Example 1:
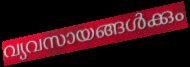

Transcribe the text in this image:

വ്യവസായങ്ങൾക്കും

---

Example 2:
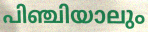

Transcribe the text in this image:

പിഞ്ചിയാലും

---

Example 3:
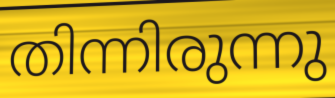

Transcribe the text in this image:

തിന്നിരുന്നു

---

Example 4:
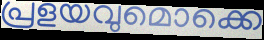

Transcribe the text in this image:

പ്രളയവുമൊക്കെ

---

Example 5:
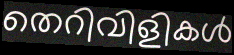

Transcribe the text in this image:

തെറിവിളികൾ